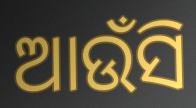
ଆଉଁସି